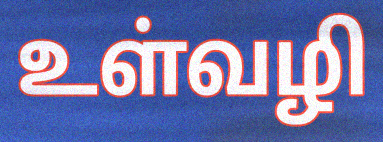
உள்வழி